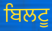
ਬਿਲਟੂ